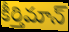
కీర్తిమాన్